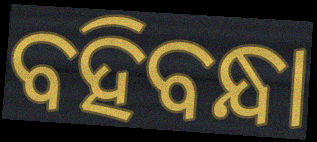
ବହିବନ୍ଧା